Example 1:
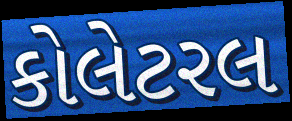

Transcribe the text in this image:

કોલેટરલ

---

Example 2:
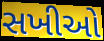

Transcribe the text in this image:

સખીઓ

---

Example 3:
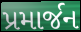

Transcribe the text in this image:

પ્રમાર્જન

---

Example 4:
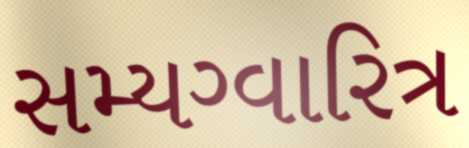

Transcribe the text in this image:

સમ્યગ્વારિત્ર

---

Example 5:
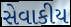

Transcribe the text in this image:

સેવાકીય